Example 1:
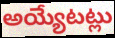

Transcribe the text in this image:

అయ్యేటట్లు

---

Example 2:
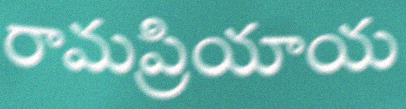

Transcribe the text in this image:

రామప్రియాయ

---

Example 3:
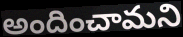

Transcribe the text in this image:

అందించామని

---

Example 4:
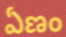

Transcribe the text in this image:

ఏణం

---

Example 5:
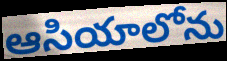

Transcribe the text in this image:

ఆసియాలోను